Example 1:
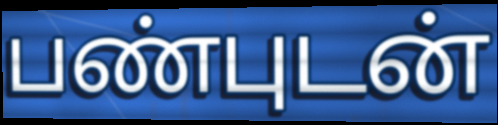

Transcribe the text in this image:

பண்புடன்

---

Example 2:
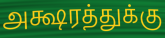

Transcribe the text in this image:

அக்ஷரத்துக்கு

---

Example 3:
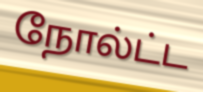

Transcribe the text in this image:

நோல்ட்ட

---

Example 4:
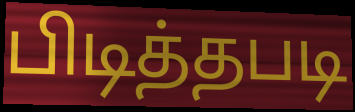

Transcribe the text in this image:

பிடித்தபடி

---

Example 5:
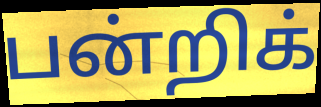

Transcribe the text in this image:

பன்றிக்